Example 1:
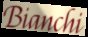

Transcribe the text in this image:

Bianchi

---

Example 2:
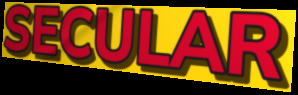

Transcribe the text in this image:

SECULAR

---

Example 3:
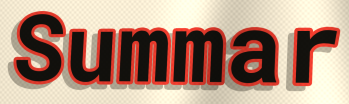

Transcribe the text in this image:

Summar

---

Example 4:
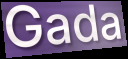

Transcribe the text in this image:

Gada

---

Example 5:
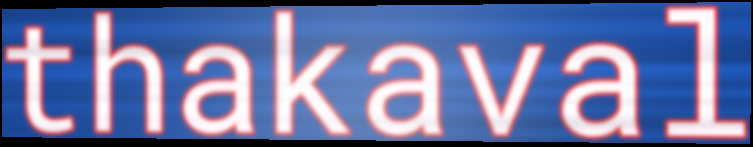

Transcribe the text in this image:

thakaval